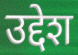
उद्देश